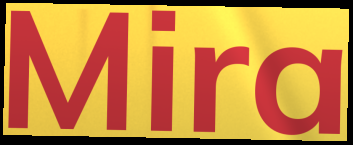
Mira